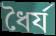
ধৈৰ্য